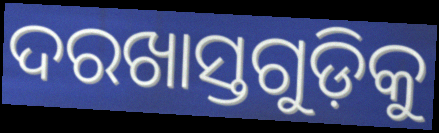
ଦରଖାସ୍ତଗୁଡ଼ିକୁ